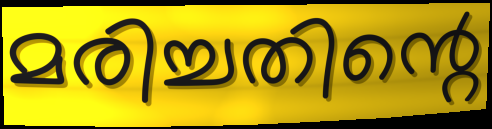
മരിച്ചതിന്റെ